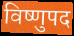
विष्णुपद